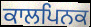
ਕਾਲਪਿਨਕ